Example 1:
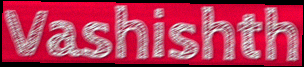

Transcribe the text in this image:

Vashishth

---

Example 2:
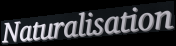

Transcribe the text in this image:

Naturalisation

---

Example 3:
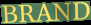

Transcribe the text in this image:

BRAND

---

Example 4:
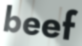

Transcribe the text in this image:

beef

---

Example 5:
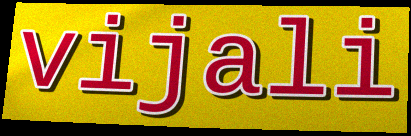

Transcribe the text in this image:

vijali